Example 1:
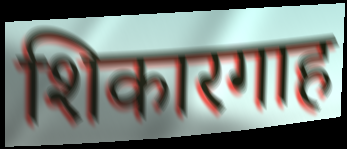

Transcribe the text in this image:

शिकारगाह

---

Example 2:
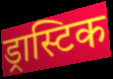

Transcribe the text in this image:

ड्रास्टिक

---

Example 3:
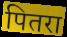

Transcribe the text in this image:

पितरा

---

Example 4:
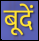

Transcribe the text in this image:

बूदें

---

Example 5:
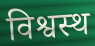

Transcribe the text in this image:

विश्वस्थ